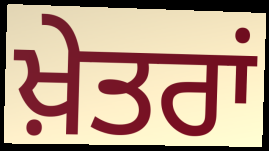
ਖ਼ੇਤਰਾਂ